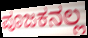
ಪೂಜಕನಲ್ಲ